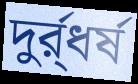
দুর্র্ধর্ষ